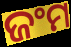
ଜଂମ